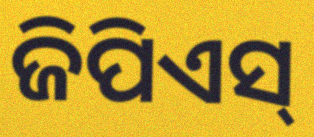
ଜିପିଏସ୍